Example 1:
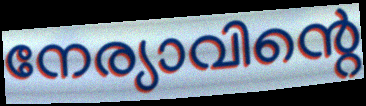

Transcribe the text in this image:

നേര്യാവിന്റെ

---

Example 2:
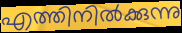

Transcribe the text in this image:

എത്തിനിൽക്കുന്നു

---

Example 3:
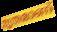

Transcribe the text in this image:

മൃതമാണ്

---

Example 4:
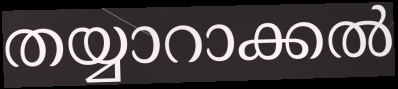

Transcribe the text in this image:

തയ്യാറാക്കൽ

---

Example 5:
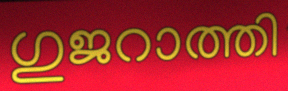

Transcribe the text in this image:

ഗുജറാത്തി